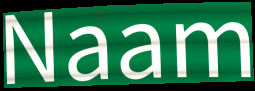
Naam